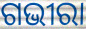
ଗଭୀରା